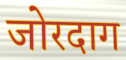
जोरदाग